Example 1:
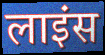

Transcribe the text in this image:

लाइंस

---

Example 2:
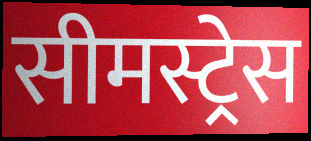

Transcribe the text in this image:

सीमस्ट्रेस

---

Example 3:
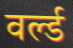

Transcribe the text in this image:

वर्ल्ड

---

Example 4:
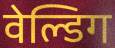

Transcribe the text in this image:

वेल्डिग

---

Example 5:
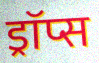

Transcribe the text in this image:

ड्रॉप्स